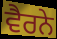
ਵੈਰਨੇ